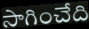
సాగించేది